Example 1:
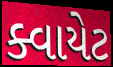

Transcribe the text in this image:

ક્વાયેટ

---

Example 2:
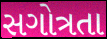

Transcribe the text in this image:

સગોત્રતા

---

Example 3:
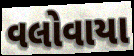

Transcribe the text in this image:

વલોવાયા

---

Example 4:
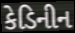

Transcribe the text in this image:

કેડિનીન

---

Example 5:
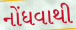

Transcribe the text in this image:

નોંધવાથી